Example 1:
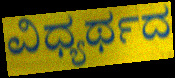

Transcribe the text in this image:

ವಿಧ್ಯರ್ಥದ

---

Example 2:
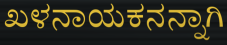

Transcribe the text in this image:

ಖಳನಾಯಕನನ್ನಾಗಿ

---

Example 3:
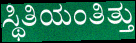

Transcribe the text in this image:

ಸ್ಥಿತಿಯಂತಿತ್ತು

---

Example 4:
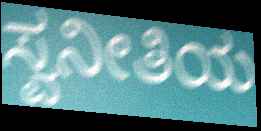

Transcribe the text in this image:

ಸ್ವನೀತಿಯ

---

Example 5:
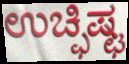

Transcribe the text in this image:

ಉಚ್ಫಿಷ್ಟ